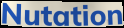
Nutation